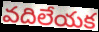
వదిలేయక